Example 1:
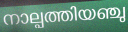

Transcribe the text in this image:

നാല്പത്തിയഞ്ചു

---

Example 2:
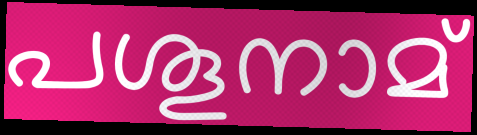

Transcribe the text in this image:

പശൂനാമ്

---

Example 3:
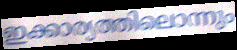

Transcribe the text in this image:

ഇക്കാര്യത്തിലൊന്നും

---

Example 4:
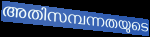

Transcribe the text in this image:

അതിസമ്പന്നതയുടെ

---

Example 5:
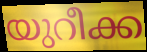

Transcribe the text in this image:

യുറീക്ക